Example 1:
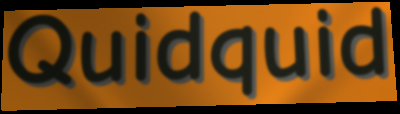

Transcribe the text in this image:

Quidquid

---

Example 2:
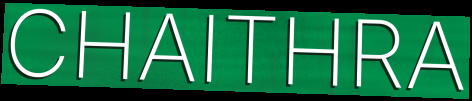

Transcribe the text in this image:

CHAITHRA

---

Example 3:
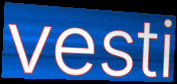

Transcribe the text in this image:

vesti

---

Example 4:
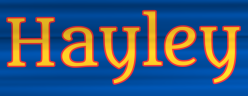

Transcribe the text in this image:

Hayley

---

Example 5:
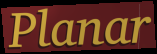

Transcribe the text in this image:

Planar